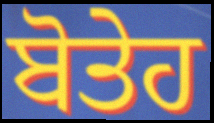
ਬੋਤੇਹ